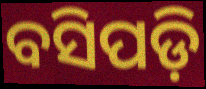
ବସିପଡ଼ି